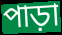
পাড়া